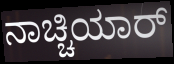
ನಾಚ್ಚಿಯಾರ್